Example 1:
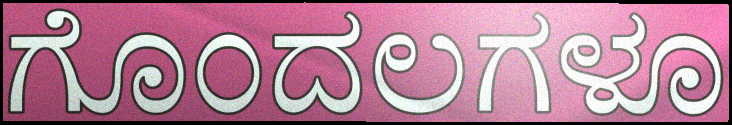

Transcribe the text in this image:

ಗೊಂದಲಗಳೂ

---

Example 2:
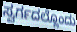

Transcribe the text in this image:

ಸ್ವರ್ಗದಲ್ಲೊಂದು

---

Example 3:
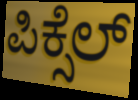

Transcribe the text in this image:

ಪಿಕ್ಸೆಲ್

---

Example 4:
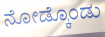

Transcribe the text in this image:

ನೋಡ್ಕೊಂಡು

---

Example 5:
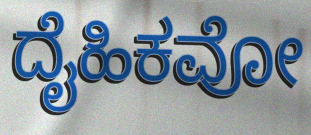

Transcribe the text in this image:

ದೈಹಿಕವೋ